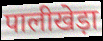
पालीखेड़ा